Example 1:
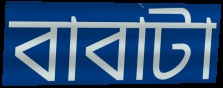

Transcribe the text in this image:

বাবাটা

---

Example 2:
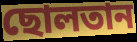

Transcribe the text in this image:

ছোলতান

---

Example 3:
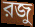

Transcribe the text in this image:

রজু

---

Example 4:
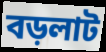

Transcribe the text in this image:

বড়লাট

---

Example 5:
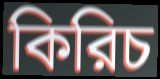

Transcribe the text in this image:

কিরিচ